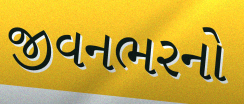
જીવનભરનો